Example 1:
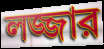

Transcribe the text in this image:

লজ্জার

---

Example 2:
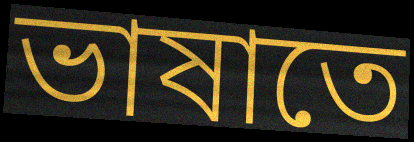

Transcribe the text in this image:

ভাষাতে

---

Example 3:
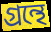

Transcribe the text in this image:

গ্রন্থে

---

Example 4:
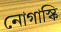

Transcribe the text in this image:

নোগাস্কি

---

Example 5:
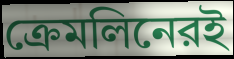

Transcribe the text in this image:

ক্রেমলিনেরই